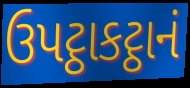
ઉપટ્ઠાકટ્ઠાનં